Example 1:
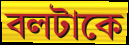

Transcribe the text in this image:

বলটাকে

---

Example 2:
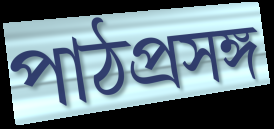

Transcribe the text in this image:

পাঠপ্রসঙ্গ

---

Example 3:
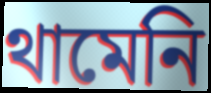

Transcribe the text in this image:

থামেনি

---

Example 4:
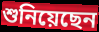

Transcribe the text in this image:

শুনিয়েছেন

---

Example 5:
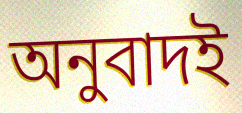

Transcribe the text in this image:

অনুবাদই